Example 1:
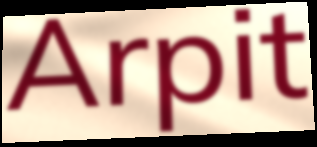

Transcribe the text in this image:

Arpit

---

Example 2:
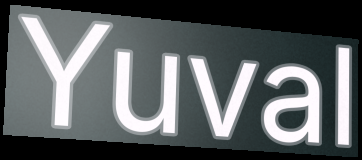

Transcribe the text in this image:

Yuval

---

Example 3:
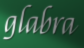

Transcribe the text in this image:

glabra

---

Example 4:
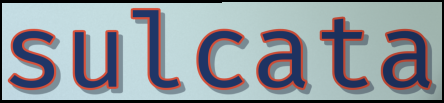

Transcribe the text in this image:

sulcata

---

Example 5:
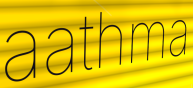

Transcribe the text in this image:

aathma